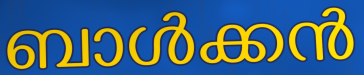
ബാൾക്കൻ